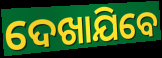
ଦେଖାଯିବେ